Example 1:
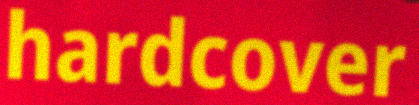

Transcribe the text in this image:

hardcover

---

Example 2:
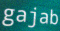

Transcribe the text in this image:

gajab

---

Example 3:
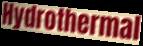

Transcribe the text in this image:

Hydrothermal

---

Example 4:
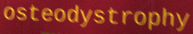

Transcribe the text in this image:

osteodystrophy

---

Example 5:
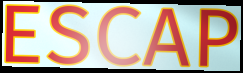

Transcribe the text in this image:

ESCAP